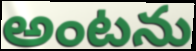
అంటను